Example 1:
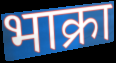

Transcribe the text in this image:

भाक्रा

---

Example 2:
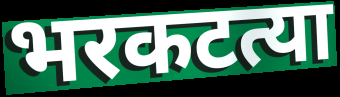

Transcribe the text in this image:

भरकटत्या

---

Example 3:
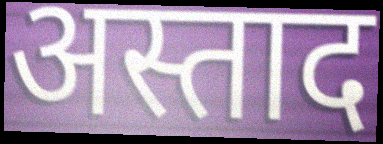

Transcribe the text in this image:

अस्ताद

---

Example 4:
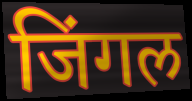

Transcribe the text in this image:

जिंगल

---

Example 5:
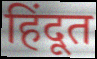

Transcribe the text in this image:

हिंदूत